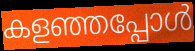
കളഞ്ഞപ്പോൾ